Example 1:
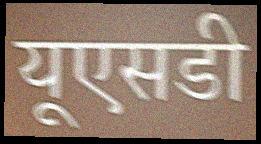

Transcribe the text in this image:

यूएसडी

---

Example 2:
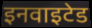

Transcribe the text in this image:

इनवाइटेड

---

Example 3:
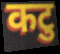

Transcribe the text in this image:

कटु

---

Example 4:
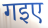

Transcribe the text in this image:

गइए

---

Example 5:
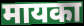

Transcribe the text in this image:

मायका